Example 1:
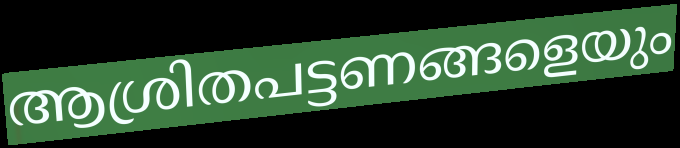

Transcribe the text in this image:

ആശ്രിതപട്ടണങ്ങളെയും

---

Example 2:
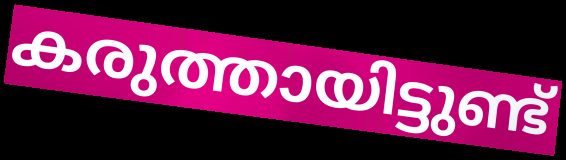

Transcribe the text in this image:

കരുത്തായിട്ടുണ്ട്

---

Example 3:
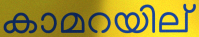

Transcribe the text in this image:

കാമറയില്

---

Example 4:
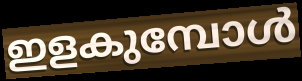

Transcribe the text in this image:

ഇളകുമ്പോൾ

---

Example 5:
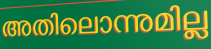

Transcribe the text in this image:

അതിലൊന്നുമില്ല